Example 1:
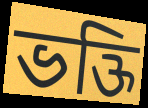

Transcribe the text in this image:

ভক্তি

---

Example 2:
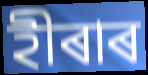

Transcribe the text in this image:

হীৰাৰ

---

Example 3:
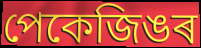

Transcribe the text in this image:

পেকেজিঙৰ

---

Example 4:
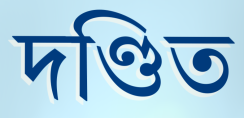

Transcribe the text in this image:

দণ্ডিত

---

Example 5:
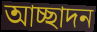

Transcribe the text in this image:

আচ্ছাদন